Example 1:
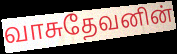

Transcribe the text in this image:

வாசுதேவனின்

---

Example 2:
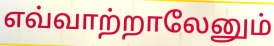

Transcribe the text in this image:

எவ்வாற்றாலேனும்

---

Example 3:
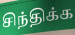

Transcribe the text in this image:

சிந்திக்க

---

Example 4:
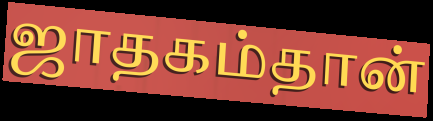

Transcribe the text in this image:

ஜாதகம்தான்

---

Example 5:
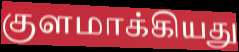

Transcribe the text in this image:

குளமாக்கியது